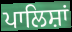
ਪਾਲਿਸ਼ਾਂ